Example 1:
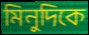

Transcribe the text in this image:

মিনুদিকে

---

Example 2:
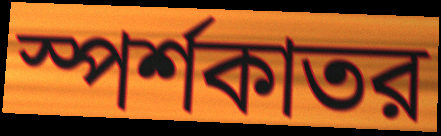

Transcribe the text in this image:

স্পর্শকাতর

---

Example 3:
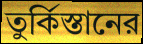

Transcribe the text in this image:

তুর্কিস্তানের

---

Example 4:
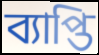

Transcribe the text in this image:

ব্যাপ্তি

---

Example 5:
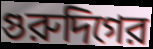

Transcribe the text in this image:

গুরুদিগের